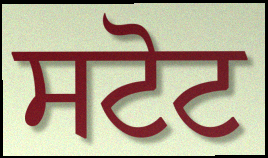
ਸਟੋਟ